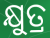
କ୍ଷୁତ୍ର